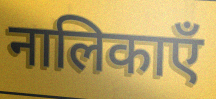
नालिकाएँ